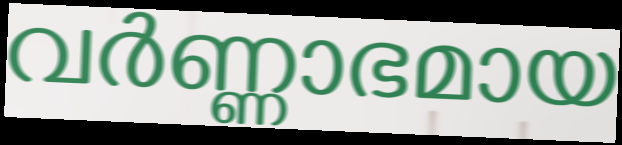
വർണ്ണാഭമായ